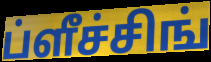
ப்ளீச்சிங்